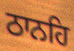
ਠਾਨਹਿ